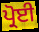
ਪ੍ਰੋਈ